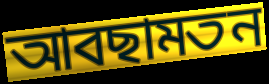
আবছামতন